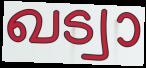
ഖട്വാ